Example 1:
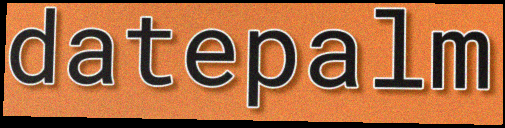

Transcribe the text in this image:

datepalm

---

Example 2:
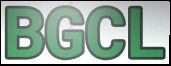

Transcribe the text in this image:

BGCL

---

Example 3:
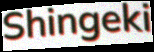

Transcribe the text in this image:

Shingeki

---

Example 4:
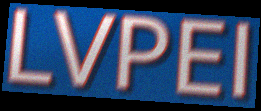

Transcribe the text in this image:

LVPEI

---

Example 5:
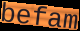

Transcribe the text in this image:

befam